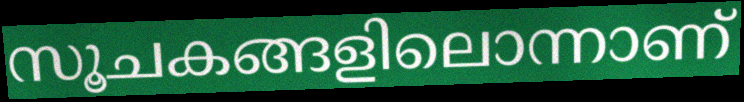
സൂചകങ്ങളിലൊന്നാണ്